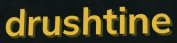
drushtine